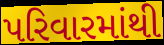
પરિવારમાંથી